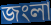
জংলা